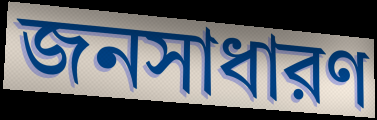
জনসাধারণ